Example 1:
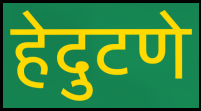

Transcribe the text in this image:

हेदुटणे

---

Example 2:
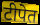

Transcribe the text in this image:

टीपेत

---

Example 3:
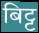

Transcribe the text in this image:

बिट्ट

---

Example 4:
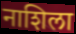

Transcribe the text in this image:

नाशिला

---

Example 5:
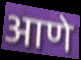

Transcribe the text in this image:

आणे